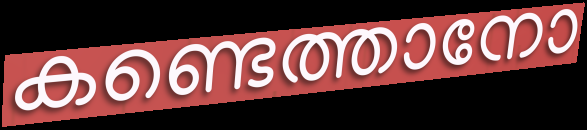
കണ്ടെത്താനോ